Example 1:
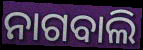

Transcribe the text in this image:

ନାଗବାଲି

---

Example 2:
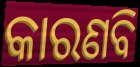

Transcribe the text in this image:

କାରଣବି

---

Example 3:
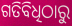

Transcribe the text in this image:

ଗତିବିଧିଠାରୁ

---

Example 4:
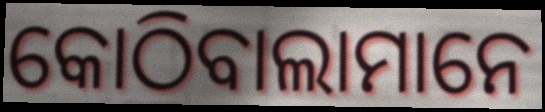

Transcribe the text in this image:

କୋଠିବାଲାମାନେ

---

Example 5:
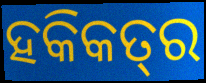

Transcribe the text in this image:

ହକିକତ୍‌ର